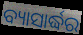
ବ୍ୟାସାର୍ଦ୍ଧର